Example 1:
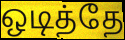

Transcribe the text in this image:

ஒடித்தே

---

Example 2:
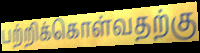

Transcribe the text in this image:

பற்றிக்கொள்வதற்கு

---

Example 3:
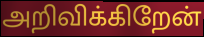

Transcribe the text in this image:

அறிவிக்கிறேன்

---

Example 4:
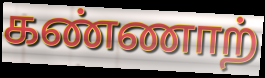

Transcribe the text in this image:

கண்ணாற்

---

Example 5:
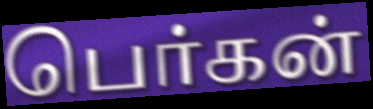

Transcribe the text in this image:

பெர்கன்